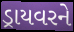
ડ્રાયવરને